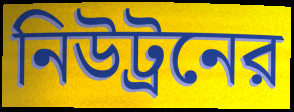
নিউট্রনের